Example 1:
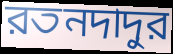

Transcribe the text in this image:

রতনদাদুর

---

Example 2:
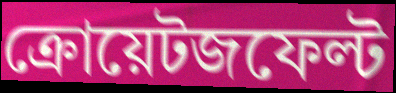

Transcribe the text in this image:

ক্রোয়েটজফেল্ট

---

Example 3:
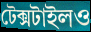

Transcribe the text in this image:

টেক্সটাইলও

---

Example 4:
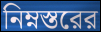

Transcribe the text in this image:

নিম্নস্তরের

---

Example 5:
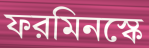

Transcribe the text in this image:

ফরমিনস্কে